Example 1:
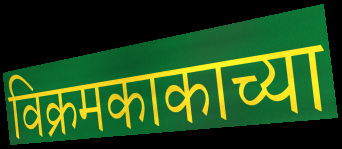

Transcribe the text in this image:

विक्रमकाकाच्या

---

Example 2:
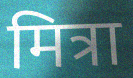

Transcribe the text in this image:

मित्रा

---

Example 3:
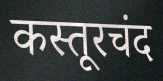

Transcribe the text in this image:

कस्तूरचंद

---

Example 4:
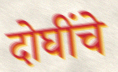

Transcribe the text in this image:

दोघींचे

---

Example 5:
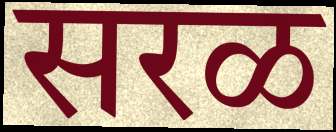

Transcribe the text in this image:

सरळ